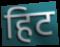
हिट